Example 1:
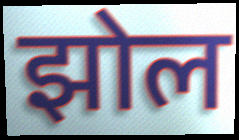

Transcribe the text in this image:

झोल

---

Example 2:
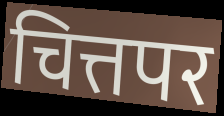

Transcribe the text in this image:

चित्तपर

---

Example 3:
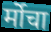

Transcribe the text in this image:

र्मोचा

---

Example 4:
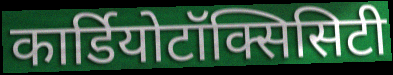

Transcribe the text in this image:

कार्डियोटॉक्सिसिटी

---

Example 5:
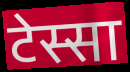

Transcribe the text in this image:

टेस्सा